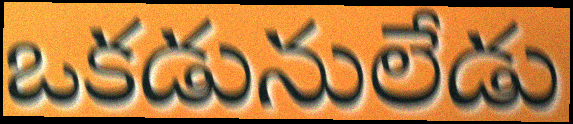
ఒకడునులేడు